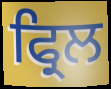
ਫ੍ਰਿਲ